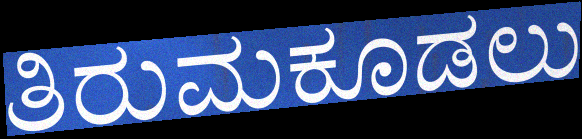
ತಿರುಮಕೂಡಲು